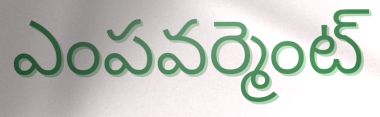
ఎంపవర్మెంట్